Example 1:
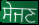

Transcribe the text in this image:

ਸੇਜਣ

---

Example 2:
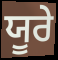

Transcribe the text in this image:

ਯੂਰੇ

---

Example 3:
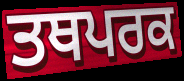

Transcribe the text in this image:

ਤਥਪਰਕ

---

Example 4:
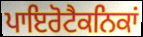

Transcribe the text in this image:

ਪਾਇਰੋਟੈਕਨਿਕਾਂ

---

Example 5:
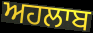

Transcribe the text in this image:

ਅਹਲਾਬ